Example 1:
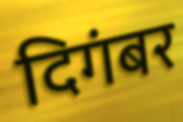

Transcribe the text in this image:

दिगंबर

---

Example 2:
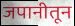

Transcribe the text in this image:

जपानीतून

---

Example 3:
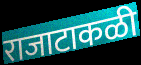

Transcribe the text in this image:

राजाटाकळी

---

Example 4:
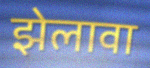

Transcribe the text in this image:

झेलावा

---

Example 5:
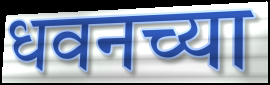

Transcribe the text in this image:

धवनच्या